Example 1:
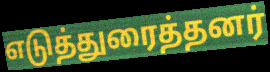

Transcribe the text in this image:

எடுத்துரைத்தனர்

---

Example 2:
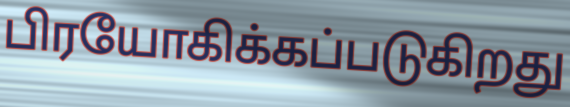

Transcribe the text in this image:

பிரயோகிக்கப்படுகிறது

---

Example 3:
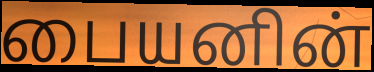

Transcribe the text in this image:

பையனின்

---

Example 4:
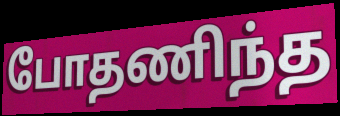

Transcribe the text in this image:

போதணிந்த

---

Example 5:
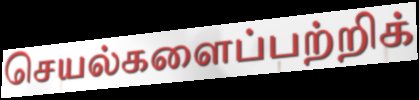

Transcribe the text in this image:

செயல்களைப்பற்றிக்